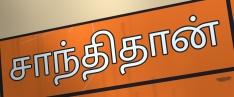
சாந்திதான்